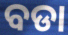
ବଡା